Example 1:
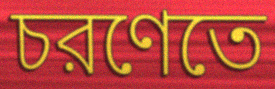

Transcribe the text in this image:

চরণেতে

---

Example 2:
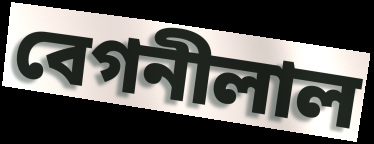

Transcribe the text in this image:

বেগনীলাল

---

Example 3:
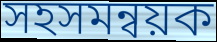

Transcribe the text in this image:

সহসমন্বয়ক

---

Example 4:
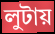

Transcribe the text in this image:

লুটায়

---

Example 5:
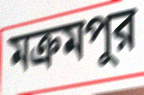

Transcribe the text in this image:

মক্রমপুর